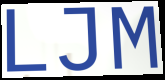
LJM